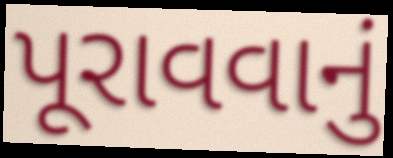
પૂરાવવાનું